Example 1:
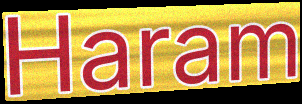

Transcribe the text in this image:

Haram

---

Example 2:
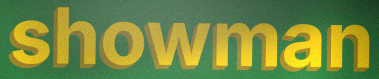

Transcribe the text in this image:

showman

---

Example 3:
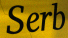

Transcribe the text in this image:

Serb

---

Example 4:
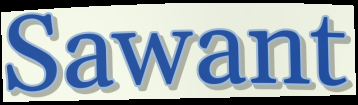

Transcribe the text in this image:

Sawant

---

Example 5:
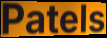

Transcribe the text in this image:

Patels